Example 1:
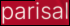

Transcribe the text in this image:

parisal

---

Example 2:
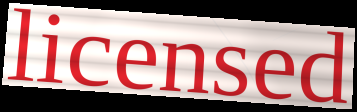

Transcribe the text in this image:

licensed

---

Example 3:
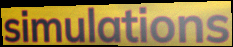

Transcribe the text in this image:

simulations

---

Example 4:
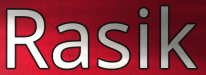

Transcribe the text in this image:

Rasik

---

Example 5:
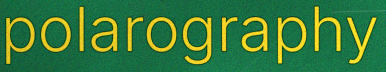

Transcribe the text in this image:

polarography